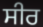
ਸੀਰ